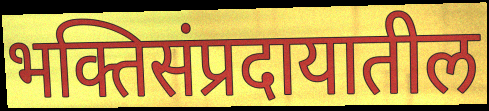
भक्तिसंप्रदायातील